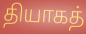
தியாகத்